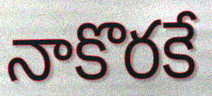
నాకొరకే